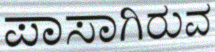
ಪಾಸಾಗಿರುವ